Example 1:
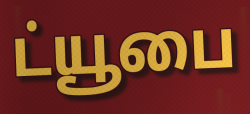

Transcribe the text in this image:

ட்யூபை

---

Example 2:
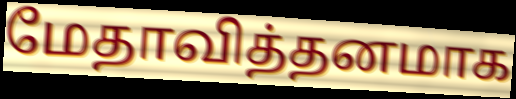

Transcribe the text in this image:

மேதாவித்தனமாக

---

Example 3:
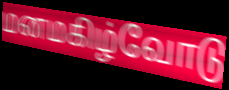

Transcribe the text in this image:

மனமகிழ்வோடு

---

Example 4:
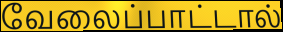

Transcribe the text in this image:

வேலைப்பாட்டால்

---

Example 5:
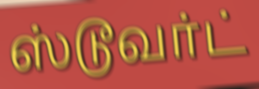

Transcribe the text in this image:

ஸ்டூவர்ட்